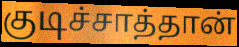
குடிச்சாத்தான்